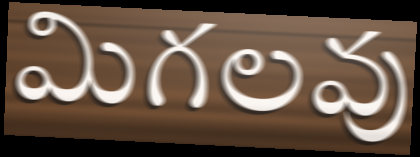
మిగలవు